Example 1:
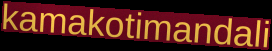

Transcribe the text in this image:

kamakotimandali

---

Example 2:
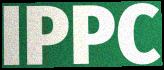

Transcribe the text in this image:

IPPC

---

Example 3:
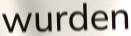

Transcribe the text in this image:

wurden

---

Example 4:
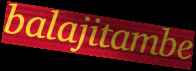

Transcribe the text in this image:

balajitambe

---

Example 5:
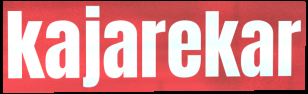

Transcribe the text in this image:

kajarekar